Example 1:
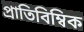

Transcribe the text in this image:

প্রাতিবিম্বিক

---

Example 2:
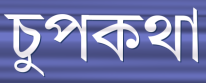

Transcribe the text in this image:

চুপকথা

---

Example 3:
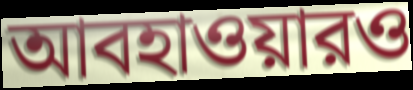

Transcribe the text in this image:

আবহাওয়ারও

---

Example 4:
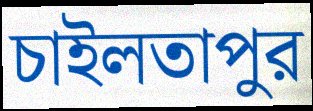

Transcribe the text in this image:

চাইলতাপুর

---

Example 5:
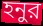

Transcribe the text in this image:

হনুর